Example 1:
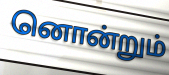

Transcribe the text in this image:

னொன்றும்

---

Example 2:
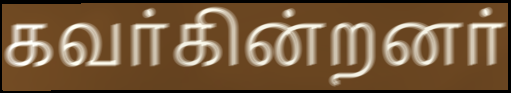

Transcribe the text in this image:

கவர்கின்றனர்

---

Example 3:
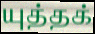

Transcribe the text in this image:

யுத்தக்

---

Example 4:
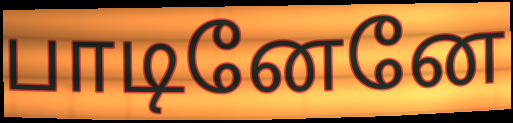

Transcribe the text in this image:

பாடினேனே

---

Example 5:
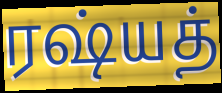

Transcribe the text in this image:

ரஷ்யத்